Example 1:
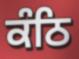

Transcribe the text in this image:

ਕੰਠਿ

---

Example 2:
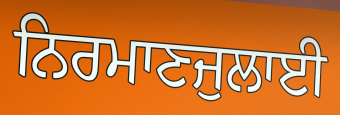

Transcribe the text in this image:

ਨਿਰਮਾਣਜੁਲਾਈ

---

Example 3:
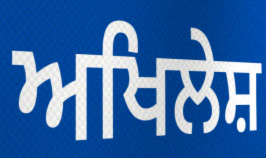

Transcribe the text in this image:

ਅਖਿਲੇਸ਼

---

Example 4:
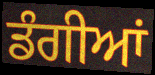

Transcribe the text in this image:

ਡੰਗੀਆਂ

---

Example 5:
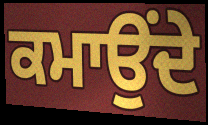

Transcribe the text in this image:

ਕਮਾਉਂਦੇ